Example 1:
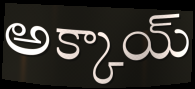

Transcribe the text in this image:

అక్కాయ్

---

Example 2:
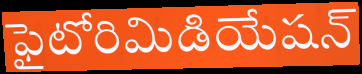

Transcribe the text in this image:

ఫైటోరిమిడియేషన్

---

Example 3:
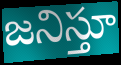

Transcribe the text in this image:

జనిస్తూ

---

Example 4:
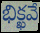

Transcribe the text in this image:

భిక్ఖవే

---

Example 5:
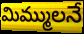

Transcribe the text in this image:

మిమ్ములనే